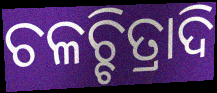
ଚଳଚ୍ଚିତ୍ରାଦି